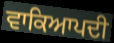
ਵਾਕਿਆਪਦੀ